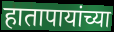
हातापायांच्या